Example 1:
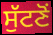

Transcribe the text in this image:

ਸੁੱਟਣੋਂ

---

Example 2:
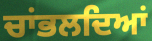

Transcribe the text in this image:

ਚਾਂਭਲਦਿਆਂ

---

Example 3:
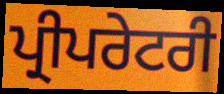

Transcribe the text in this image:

ਪ੍ਰੀਪਰੇਟਰੀ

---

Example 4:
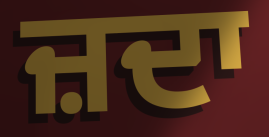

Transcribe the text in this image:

ਜ਼ਦਾ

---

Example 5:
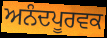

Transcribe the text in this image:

ਅਨੰਦਪੂਰਵਕ